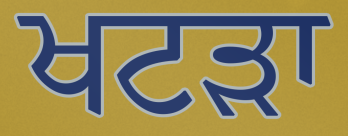
ਖਟੜਾ